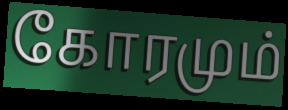
கோரமும்